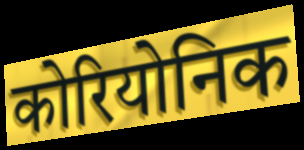
कोरियोनिक